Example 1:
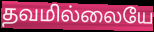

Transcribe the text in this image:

தவமில்லையே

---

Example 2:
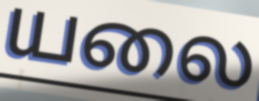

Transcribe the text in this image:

யலை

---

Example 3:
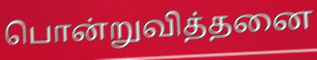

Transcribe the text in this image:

பொன்றுவித்தனை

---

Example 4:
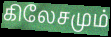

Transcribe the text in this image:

கிலேசமும்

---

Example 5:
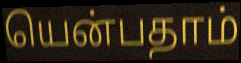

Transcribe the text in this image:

யென்பதாம்